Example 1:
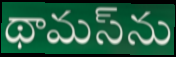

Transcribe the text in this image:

థామస్‌ను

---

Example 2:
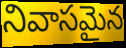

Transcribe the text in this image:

నివాసమైన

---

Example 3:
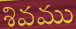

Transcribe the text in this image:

శివము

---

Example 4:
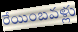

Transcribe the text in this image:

రేయింబవళ్లు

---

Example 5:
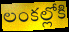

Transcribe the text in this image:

లంకల్లోకి